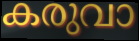
കരുവാ